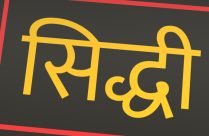
सिद्धी